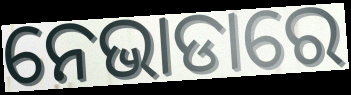
ନେଭାଡାରେ